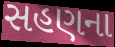
સહણના